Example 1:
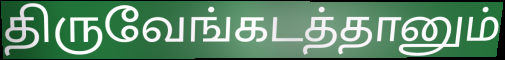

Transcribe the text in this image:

திருவேங்கடத்தானும்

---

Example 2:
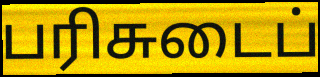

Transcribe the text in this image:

பரிசுடைப்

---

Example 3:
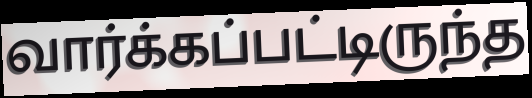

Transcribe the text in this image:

வார்க்கப்பட்டிருந்த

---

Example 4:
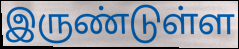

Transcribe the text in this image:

இருண்டுள்ள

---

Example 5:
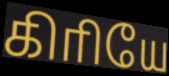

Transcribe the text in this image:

கிரியே